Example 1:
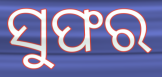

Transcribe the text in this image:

ସୁଫର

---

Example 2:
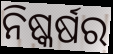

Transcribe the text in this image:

ନିଷ୍କର୍ଷର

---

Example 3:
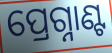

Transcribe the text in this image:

ପ୍ରେଗ୍ନାଣ୍ଟ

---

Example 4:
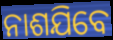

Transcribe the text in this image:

ନାଶଯିବେ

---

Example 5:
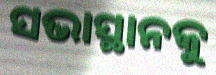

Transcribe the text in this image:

ସଭାସ୍ଥାନକୁ